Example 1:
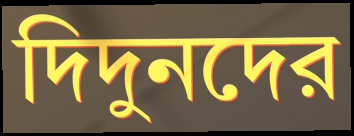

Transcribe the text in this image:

দিদুনদের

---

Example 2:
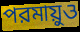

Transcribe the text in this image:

পরমায়ুও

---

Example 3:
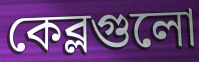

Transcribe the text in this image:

কেব্লগুলো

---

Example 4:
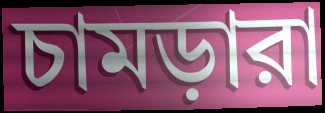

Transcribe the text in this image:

চামড়ারা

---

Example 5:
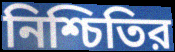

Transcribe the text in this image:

নিশ্চিতির